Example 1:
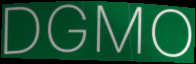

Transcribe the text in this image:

DGMO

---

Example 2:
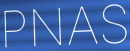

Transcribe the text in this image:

PNAS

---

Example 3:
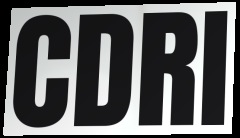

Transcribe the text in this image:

CDRI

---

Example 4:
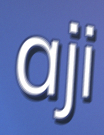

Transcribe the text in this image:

aji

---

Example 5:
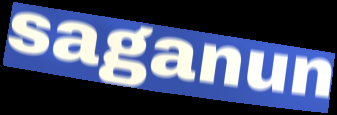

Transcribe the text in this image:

saganun